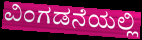
ವಿಂಗಡನೆಯಲ್ಲಿ